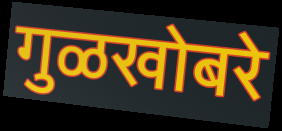
गुळखोबरे